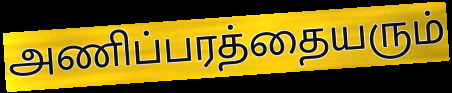
அணிப்பரத்தையரும்